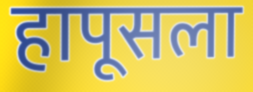
हापूसला